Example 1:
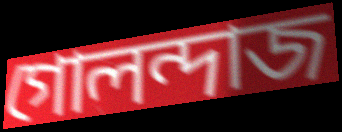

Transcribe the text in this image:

গোলন্দাজ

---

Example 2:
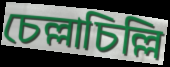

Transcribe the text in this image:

চেল্লাচিল্লি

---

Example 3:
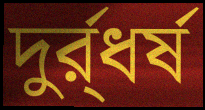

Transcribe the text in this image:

দুর্র্ধর্ষ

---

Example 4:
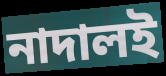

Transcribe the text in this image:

নাদালই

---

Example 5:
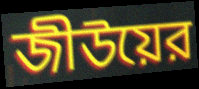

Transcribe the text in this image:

জীউয়ের